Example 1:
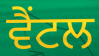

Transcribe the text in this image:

ਵੈਂਟਲ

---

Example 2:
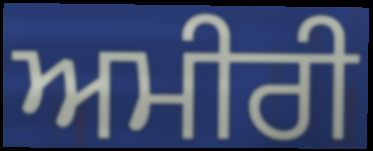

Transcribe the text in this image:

ਅਮੀਰੀ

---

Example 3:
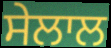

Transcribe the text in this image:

ਸੇਲਾਲ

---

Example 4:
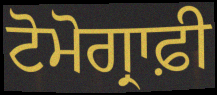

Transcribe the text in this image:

ਟੋਮੋਗ੍ਰਾਫ਼ੀ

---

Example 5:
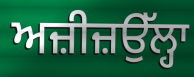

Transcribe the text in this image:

ਅਜ਼ੀਜ਼ਉੱਲ੍ਹਾ